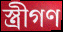
স্ত্রীগণ